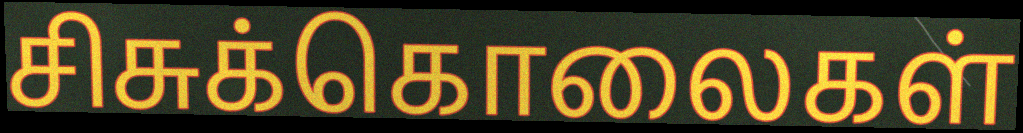
சிசுக்கொலைகள்